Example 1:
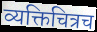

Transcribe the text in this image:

व्यक्तिचित्रच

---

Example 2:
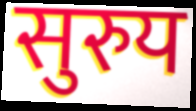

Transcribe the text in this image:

सुरुय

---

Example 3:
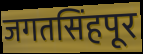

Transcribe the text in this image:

जगतसिंहपूर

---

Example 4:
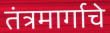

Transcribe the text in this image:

तंत्रमार्गाचे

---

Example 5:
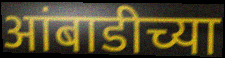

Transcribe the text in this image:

आंबाडीच्या